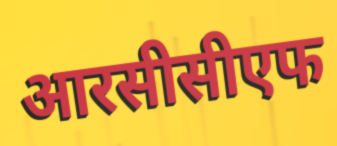
आरसीसीएफ